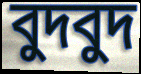
বুদবুদ